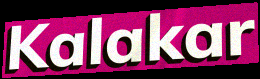
Kalakar